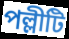
পল্লীটি